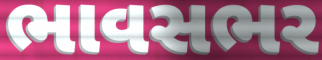
ભાવસભર